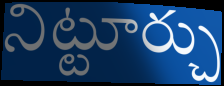
నిట్టూర్చు